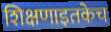
शिक्षणाइतकेच